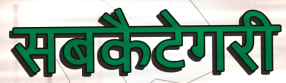
सबकैटेगरी